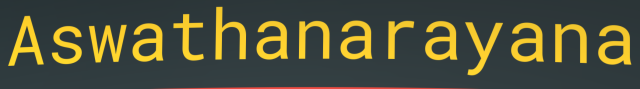
Aswathanarayana